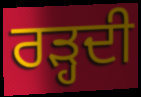
ਰੜ੍ਹਦੀ